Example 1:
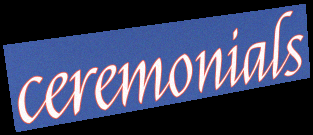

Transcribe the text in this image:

ceremonials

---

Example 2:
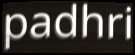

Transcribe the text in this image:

padhri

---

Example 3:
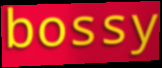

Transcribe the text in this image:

bossy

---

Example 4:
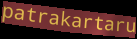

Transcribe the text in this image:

patrakartaru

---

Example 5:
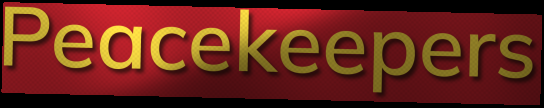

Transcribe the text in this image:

Peacekeepers